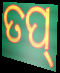
ତପ୍